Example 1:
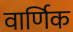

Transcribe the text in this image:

वार्णिक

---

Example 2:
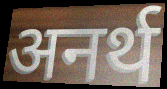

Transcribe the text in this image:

अनर्थ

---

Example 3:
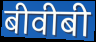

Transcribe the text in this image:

बीवीबी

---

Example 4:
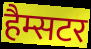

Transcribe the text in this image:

हैम्सटर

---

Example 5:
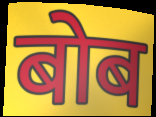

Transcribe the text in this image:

बोब